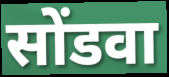
सोंडवा